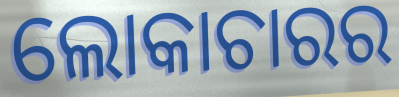
ଲୋକାଚାରର